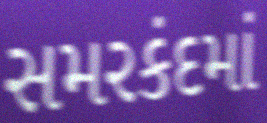
સમરકંદમાં